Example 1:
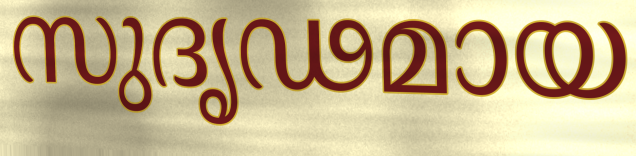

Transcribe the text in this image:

സുദൃഢമായ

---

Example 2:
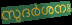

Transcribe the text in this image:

സുദർശനഃ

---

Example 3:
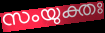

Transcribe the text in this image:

സംയുക്തഃ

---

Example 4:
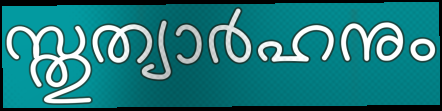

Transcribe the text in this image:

സ്തുത്യാർഹനും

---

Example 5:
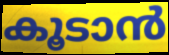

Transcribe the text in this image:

കൂടാൻ